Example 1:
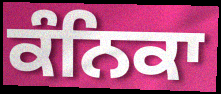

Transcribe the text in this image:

ਕੰਨਿਕਾ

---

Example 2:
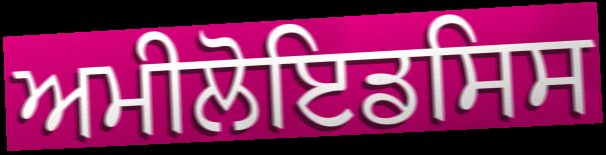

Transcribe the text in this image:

ਅਮੀਲੋਇਡਸਿਸ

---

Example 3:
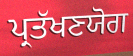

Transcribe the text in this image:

ਪ੍ਰਤੱਖਣਯੋਗ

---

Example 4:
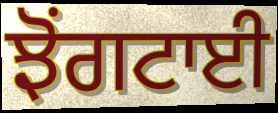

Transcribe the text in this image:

ਝੋਂਗਟਾਈ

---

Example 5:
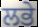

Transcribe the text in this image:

ਲਭੇ